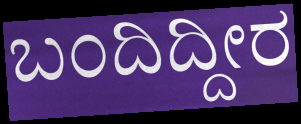
ಬಂದಿದ್ದೀರ